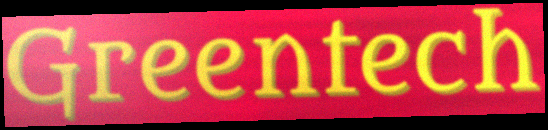
Greentech